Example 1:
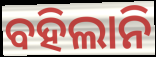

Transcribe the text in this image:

ବହିଲାନି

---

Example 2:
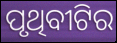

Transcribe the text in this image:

ପୃଥିବୀଟିର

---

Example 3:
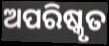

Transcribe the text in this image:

ଅପରିଷ୍କୃତ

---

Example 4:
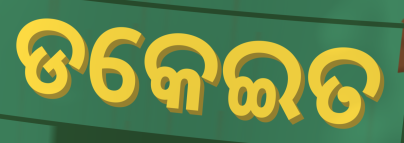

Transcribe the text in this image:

ଡକେଇତ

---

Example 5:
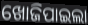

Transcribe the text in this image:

ଖୋଜିପାଇଲା